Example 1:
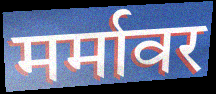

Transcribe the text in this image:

मर्मावर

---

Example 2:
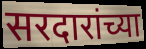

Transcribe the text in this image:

सरदारांच्या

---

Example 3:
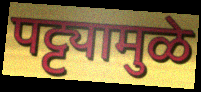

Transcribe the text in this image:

पट्ट्यामुळे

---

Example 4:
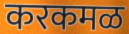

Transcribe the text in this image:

करकमळ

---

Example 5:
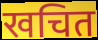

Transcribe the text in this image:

खचित